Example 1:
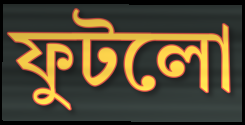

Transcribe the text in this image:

ফুটলো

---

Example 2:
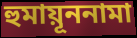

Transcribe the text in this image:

হুমায়ূননামা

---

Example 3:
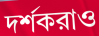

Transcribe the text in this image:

দর্শকরাও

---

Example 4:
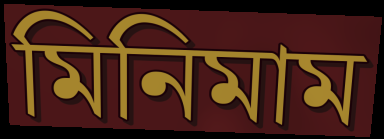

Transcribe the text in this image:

মিনিমাম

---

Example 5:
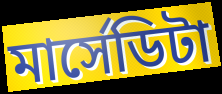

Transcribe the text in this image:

মার্সেডিটা